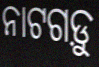
ନାଟଗଡ଼ୁ